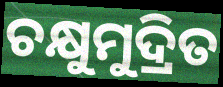
ଚକ୍ଷୁମୁଦ୍ରିତ